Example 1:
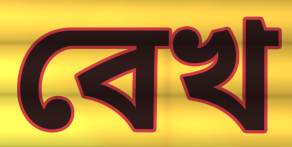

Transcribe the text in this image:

বেখ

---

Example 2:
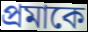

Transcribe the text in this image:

প্রমাকে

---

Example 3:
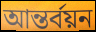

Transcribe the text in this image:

আন্তর্বয়ন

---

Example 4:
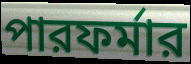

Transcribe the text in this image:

পারফর্মার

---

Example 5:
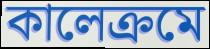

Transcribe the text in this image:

কালেক্রমে